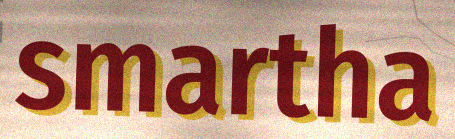
smartha